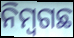
ନିମ୍ୱଗଛ